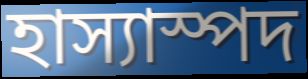
হাস্যাস্পদ